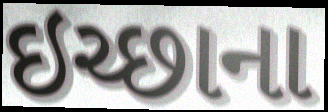
ઇચ્છાના